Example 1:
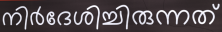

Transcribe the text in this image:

നിർദേശിച്ചിരുന്നത്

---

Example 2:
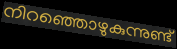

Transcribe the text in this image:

നിറഞ്ഞൊഴുകുന്നുണ്ട്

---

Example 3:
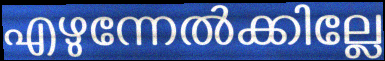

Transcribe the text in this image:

എഴുന്നേൽക്കില്ലേ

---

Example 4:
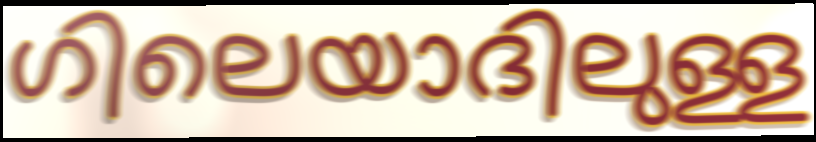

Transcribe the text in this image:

ഗിലെയാദിലുള്ള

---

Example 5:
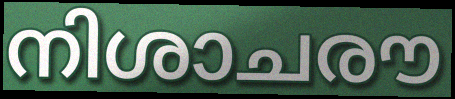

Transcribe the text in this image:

നിശാചരൗ